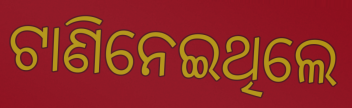
ଟାଣିନେଇଥିଲେ